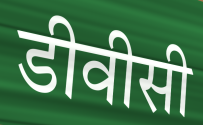
डीवीसी